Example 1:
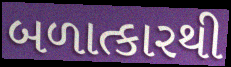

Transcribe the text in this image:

બળાત્કારથી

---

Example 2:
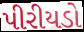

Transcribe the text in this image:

પીરીયડો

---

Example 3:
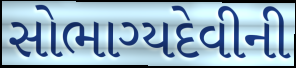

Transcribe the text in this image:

સોભાગ્યદેવીની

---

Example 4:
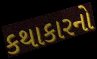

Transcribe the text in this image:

કથાકારનો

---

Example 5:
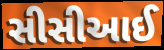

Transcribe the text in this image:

સીસીઆઈ